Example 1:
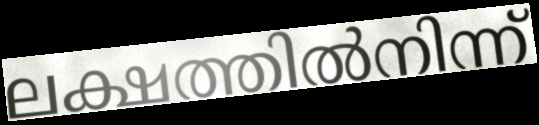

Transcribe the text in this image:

ലക്ഷത്തിൽനിന്ന്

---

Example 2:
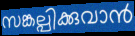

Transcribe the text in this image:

സങ്കല്പിക്കുവാൻ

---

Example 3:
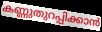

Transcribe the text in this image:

കണ്ണുതുറപ്പിക്കാൻ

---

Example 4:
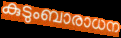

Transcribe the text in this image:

കുടുംബാരാധന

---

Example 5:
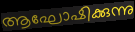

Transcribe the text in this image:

ആഘോഷിക്കുന്നു